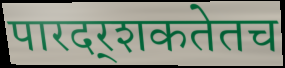
पारदर्शकतेतच